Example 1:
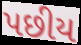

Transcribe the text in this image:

પછીય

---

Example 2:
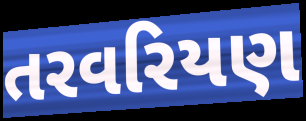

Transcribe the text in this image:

તરવરિયણ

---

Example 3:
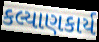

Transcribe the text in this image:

કલ્યાણકાર્ય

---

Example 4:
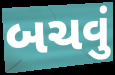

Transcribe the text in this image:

બચવું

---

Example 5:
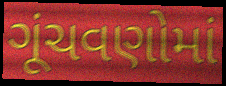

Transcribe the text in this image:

ગૂંચવણોમાં